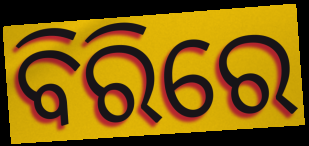
ବିରିରେ